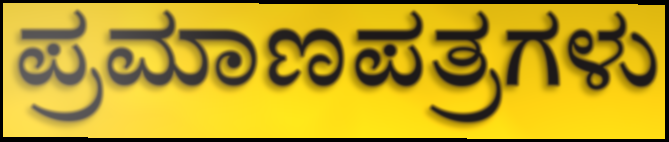
ಪ್ರಮಾಣಪತ್ರಗಳು